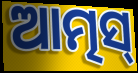
ଆତ୍ମସ୍